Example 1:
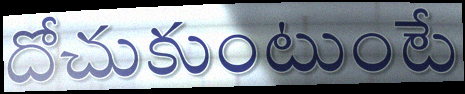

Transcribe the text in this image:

దోచుకుంటుంటే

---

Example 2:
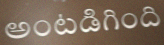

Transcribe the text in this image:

అంటడిగింది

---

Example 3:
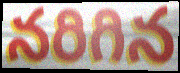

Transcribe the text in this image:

నరిగిన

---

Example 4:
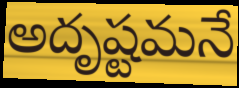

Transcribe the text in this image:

అదృష్టమనే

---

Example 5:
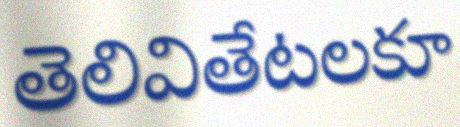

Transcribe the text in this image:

తెలివితేటలకూ